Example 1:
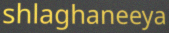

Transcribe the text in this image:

shlaghaneeya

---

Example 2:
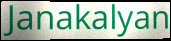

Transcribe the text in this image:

Janakalyan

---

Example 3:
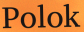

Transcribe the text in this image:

Polok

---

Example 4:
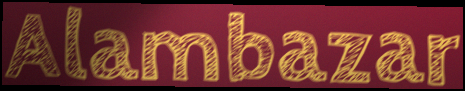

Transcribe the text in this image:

Alambazar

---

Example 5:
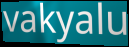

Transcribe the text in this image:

vakyalu